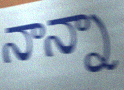
నాన్నా